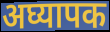
अघ्यापक